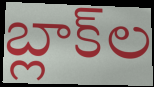
బ్లాక్‌ల